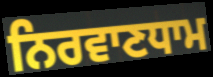
ਨਿਰਵਾਣਧਾਮ